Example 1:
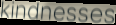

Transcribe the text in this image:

kindnesses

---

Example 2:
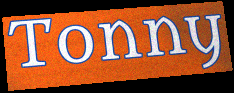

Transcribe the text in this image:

Tonny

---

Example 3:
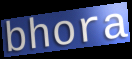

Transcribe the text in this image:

bhora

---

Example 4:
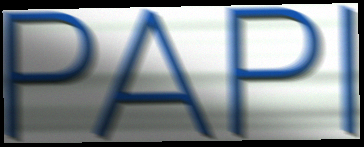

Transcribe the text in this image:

PAPI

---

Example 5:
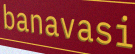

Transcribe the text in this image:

banavasi